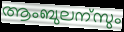
ആംബുലന്സും